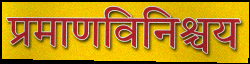
प्रमाणविनिश्चय